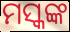
ମସ୍କଙ୍କ